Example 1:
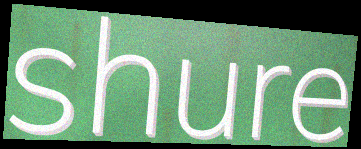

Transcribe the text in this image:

shure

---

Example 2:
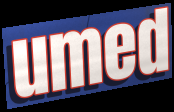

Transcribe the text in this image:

umed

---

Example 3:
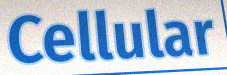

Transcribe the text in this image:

Cellular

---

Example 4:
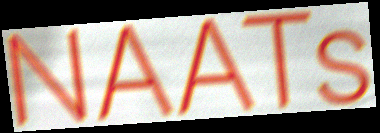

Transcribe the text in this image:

NAATs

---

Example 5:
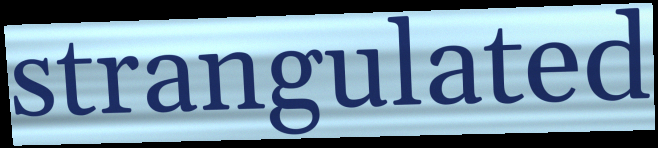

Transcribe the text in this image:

strangulated